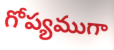
గోప్యముగా